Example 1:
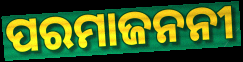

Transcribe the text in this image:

ପରମାଜନନୀ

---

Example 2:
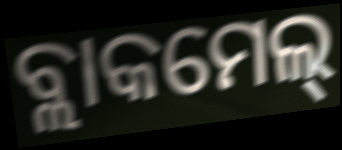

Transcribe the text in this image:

ବ୍ଲାକମେଲ୍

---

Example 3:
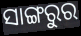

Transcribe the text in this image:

ସାଙ୍ଗରୁର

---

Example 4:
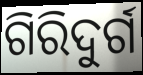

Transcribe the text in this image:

ଗିରିଦୁର୍ଗ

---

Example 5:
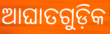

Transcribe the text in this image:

ଆଘାତଗୁଡ଼ିକ